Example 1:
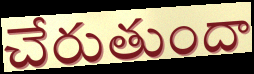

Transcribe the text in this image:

చేరుతుందా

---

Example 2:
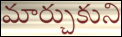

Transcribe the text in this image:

మార్చుకుని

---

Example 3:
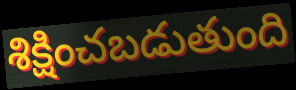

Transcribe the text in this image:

శిక్షించబడుతుంది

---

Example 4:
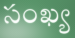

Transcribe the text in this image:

సంఖ్య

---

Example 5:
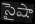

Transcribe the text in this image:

సైషా